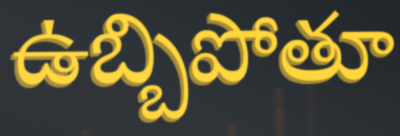
ఉబ్బిపోతూ